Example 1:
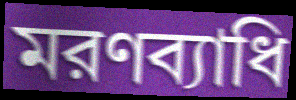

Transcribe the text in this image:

মরণব্যাধি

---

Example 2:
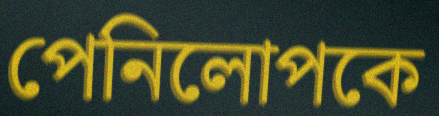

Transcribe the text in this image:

পেনিলোপকে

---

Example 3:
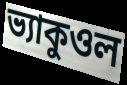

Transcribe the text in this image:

ভ্যাকুওল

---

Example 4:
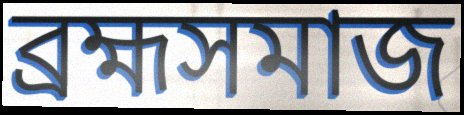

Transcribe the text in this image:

ব্রহ্মসমাজ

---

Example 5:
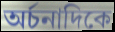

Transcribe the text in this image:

অর্চনাদিকে